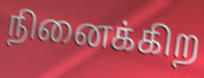
நினைக்கிற